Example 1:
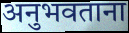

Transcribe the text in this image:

अनुभवताना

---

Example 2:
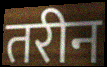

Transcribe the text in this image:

तरीन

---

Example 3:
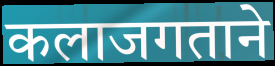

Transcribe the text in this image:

कलाजगताने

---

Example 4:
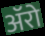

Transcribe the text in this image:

ॲरो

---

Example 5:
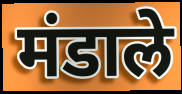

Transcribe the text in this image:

मंडाले